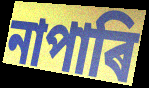
নাপাৰি